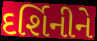
દર્શિનીને